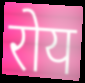
रोय